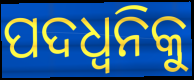
ପଦଧ୍ୱନିକୁ